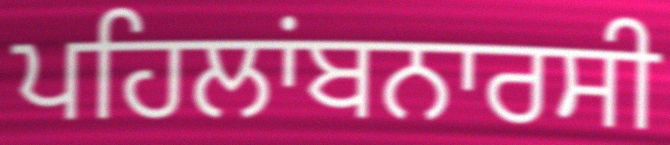
ਪਹਿਲਾਂਬਨਾਰਸੀ